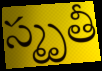
స్మృతీ